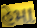
હેમા